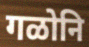
गळोनि